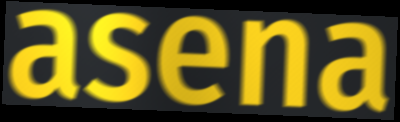
asena